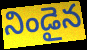
నిండైన